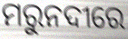
ମରୁନଦୀରେ